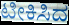
ಟೀಕಿಸಿದ